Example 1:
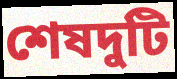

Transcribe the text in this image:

শেষদুটি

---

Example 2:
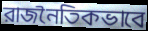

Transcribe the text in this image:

রাজনৈতিকভাবে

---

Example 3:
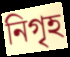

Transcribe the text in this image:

নিগৃহ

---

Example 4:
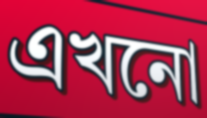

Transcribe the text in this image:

এখনো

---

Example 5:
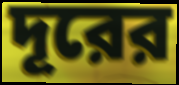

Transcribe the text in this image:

দূরের